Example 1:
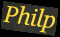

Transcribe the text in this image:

Philp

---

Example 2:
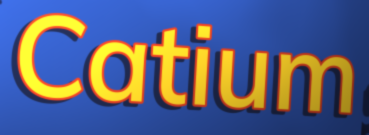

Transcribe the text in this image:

Catium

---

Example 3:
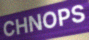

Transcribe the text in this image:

CHNOPS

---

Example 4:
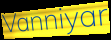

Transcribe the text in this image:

Vanniyar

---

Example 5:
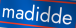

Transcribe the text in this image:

madidde